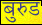
बुरुड